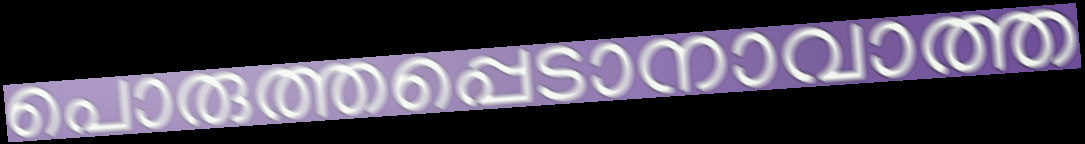
പൊരുത്തപ്പെടാനാവാത്ത